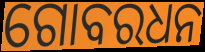
ଗୋବରଧନ